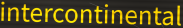
intercontinental